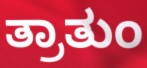
ತ್ರಾತುಂ